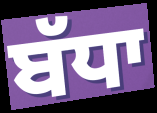
ਬੱਧਾ